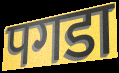
पगडा